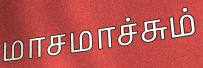
மாசமாச்சும்